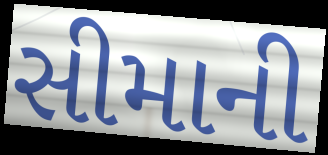
સીમાની